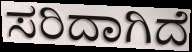
ಸರಿದಾಗಿದೆ